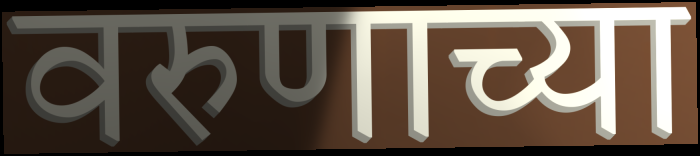
वरुणाच्या